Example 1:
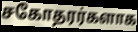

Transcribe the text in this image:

சகோதரர்களாக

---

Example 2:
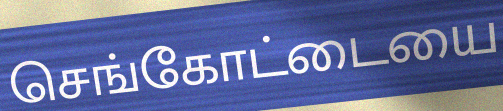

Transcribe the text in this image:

செங்கோட்டையை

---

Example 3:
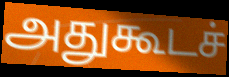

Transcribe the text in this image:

அதுகூடச்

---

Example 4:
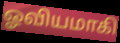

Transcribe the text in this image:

ஓவியமாகி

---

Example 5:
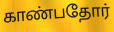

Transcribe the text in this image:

காண்பதோர்